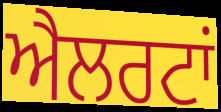
ਐਲਰਟਾਂ